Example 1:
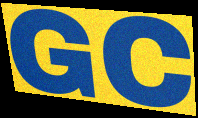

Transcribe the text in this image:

GC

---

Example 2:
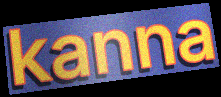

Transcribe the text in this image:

kanna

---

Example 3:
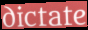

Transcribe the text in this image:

dictate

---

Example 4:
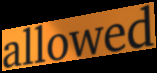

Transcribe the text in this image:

allowed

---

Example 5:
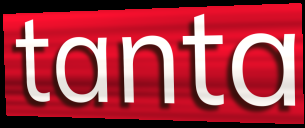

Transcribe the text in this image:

tanta